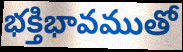
భక్తిభావముతో